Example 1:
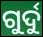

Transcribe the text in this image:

ଗୁର୍ଦୁ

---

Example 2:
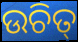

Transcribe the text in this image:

ଉଚିତ୍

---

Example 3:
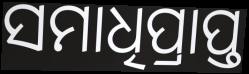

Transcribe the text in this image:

ସମାଧିପ୍ରାପ୍ତ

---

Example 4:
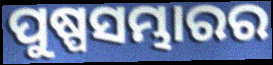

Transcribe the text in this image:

ପୁଷ୍ପସମ୍ଭାରର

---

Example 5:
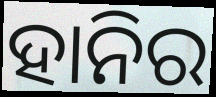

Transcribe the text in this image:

ହାନିର